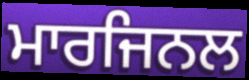
ਮਾਰਜਿਨਲ